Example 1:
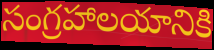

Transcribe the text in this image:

సంగ్రహాలయానికి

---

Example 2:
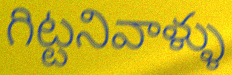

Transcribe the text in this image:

గిట్టనివాళ్ళు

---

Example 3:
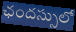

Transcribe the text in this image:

ఛందస్సులో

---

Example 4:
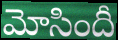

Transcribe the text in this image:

మోసిందీ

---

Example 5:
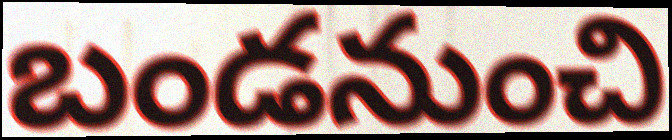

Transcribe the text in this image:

బండనుంచి